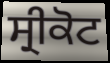
ਸ੍ਰੀਕੋਟ